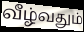
வீழ்வதும்